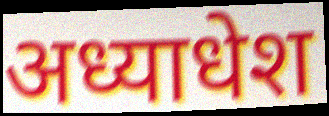
अध्याधेश